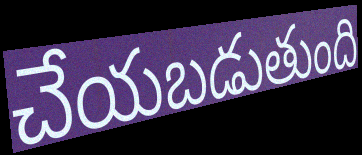
చేయబడుతుంది